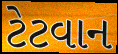
ટેટવાન